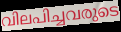
വിലപിച്ചവരുടെ